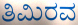
ತಿಮಿರವ